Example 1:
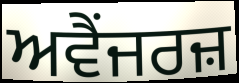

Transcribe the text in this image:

ਅਵੈਂਜਰਜ਼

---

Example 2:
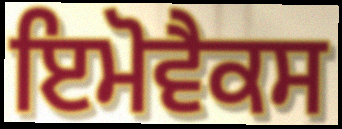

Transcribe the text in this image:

ਇਮੋਵੈਕਸ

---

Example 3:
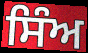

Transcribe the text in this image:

ਸਿੰਅ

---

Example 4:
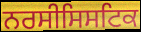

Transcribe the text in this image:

ਨਰਸੀਸਿਸਟਿਕ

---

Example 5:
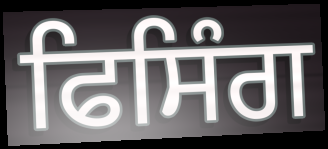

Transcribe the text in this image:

ਫਿਸਿੰਗ